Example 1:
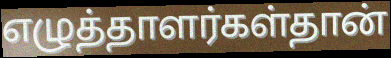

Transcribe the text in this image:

எழுத்தாளர்கள்தான்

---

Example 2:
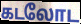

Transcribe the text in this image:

கடலோட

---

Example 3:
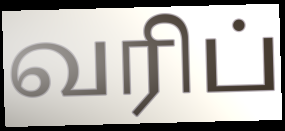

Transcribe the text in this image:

வரிப்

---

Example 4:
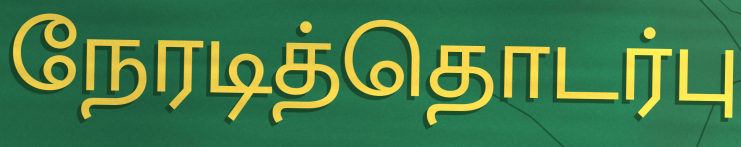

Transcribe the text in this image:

நேரடித்தொடர்பு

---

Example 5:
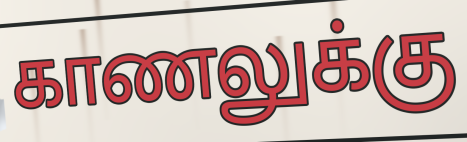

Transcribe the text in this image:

காணலுக்கு